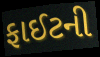
ફાઈટની